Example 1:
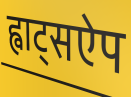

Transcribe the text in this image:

ह्वाट्सऐप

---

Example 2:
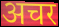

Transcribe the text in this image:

अचर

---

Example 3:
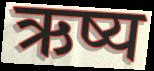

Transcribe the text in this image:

ऋष्य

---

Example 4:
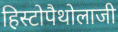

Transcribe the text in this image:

हिस्टोपैथोलाजी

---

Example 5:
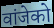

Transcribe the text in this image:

वांजेको